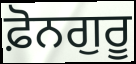
ਫ਼ੋਨਗੁਰੂ